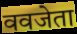
ववजेता